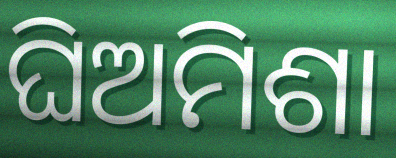
ଘିଅମିଶା